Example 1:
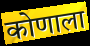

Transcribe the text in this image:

कोणाला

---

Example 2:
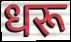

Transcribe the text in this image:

धरू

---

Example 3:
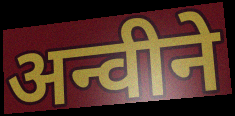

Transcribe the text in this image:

अन्वीने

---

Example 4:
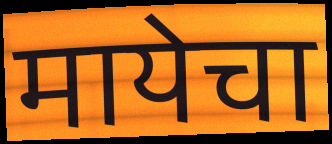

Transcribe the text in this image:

मायेचा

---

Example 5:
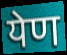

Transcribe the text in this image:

येण